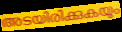
അടയിരിക്കുകയും